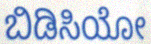
ಬಿಡಿಸಿಯೋ